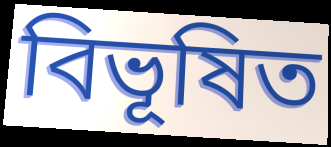
বিভূষিত